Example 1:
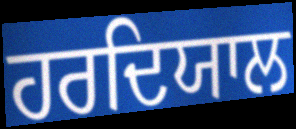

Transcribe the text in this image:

ਹਰਦਿਯਾਲ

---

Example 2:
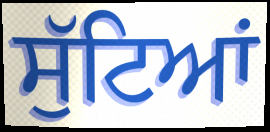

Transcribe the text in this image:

ਸੁੱਟਿਆਂ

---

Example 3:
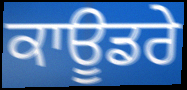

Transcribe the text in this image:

ਕਾਊਡਰੇ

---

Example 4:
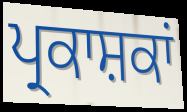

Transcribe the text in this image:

ਪ੍ਰਕਾਸ਼ਕਾਂ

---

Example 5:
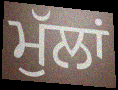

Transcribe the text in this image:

ਮੁੱਲਾਂ